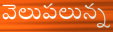
వెలుపలున్న